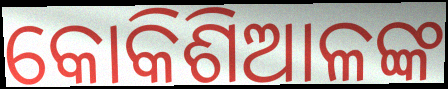
କୋକିଶିଆଳଙ୍କ